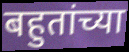
बहुतांच्या